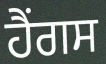
ਹੈਂਗਸ